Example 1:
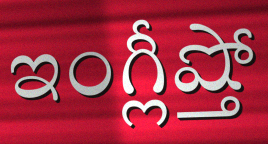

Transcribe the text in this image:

ఇంగ్లీష్తో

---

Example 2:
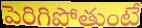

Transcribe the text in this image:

పెరిగిపోతుంటే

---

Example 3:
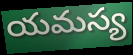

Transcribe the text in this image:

యమస్య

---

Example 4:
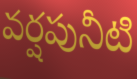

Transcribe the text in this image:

వర్షపునీటి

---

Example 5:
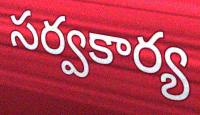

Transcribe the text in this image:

సర్వకార్య